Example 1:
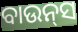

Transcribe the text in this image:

ବାଉନ୍‍ସ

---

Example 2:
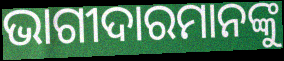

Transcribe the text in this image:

ଭାଗୀଦାରମାନଙ୍କୁ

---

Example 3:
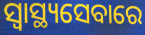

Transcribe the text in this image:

ସ୍ୱାସ୍ଥ୍ୟସେବାରେ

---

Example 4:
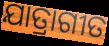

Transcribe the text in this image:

ଯାତ୍ରାଗୀତ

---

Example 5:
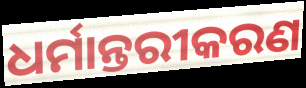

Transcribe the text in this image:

ଧର୍ମାନ୍ତରୀକରଣ